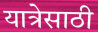
यात्रेसाठी